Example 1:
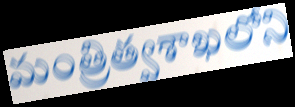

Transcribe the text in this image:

మంత్రిత్వశాఖలోని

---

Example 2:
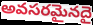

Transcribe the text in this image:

అవసరమైనదై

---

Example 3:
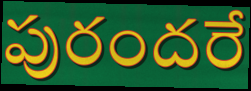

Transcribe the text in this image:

పురందరే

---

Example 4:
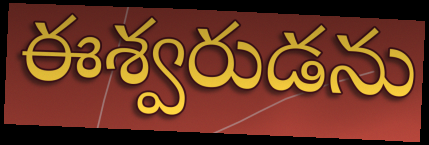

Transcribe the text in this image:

ఈశ్వరుడను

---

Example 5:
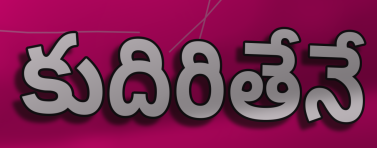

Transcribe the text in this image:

కుదిరితేనే